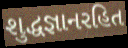
શુદ્ધજ્ઞાનરહિત